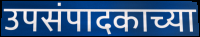
उपसंपादकाच्या